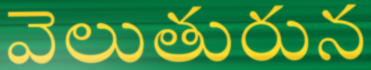
వెలుతురున